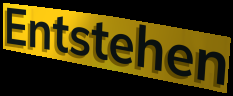
Entstehen